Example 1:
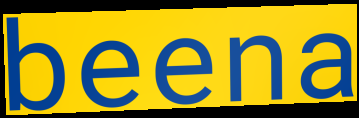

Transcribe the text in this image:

beena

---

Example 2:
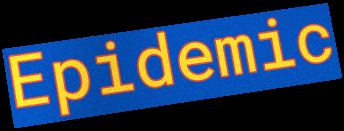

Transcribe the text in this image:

Epidemic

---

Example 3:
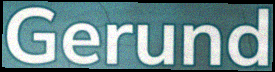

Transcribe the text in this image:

Gerund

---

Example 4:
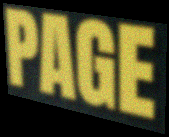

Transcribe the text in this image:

PAGE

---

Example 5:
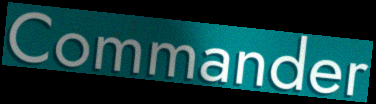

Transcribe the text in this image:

Commander